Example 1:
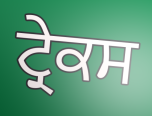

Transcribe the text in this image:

ਟ੍ਰੇਕਸ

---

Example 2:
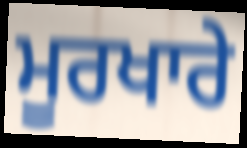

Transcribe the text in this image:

ਮੂਰਖਾਰੇ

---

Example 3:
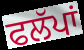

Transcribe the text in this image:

ਫਲੱਪਾਂ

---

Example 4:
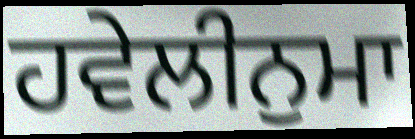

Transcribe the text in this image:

ਹਵੇਲੀਨੁਮਾ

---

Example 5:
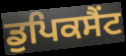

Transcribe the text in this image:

ਡੁਪਿਕਸੈਂਟ